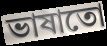
ভাষাতো